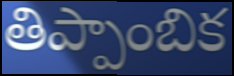
తిప్పాంబిక